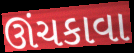
ઊંચકાવા